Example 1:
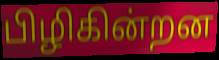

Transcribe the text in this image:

பிழிகின்றன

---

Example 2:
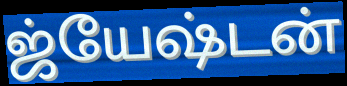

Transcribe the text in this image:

ஜ்யேஷ்டன்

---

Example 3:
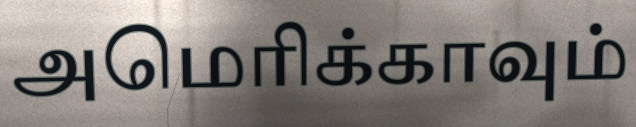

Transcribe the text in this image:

அமெரிக்காவும்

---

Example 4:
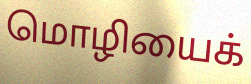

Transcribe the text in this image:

மொழியைக்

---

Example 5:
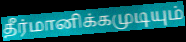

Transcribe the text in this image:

தீர்மானிக்கமுடியும்